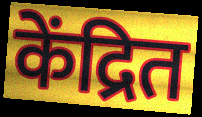
केंद्रित